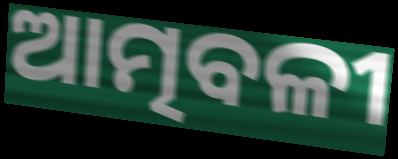
ଆତ୍ମବଳୀ